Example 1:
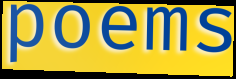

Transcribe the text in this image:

poems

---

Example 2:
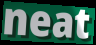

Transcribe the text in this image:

neat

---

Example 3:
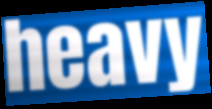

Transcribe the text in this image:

heavy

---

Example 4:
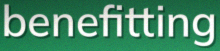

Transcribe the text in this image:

benefitting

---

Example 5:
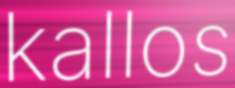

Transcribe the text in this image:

kallos